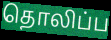
தொலிப்ப